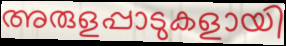
അരുളപ്പാടുകളായി